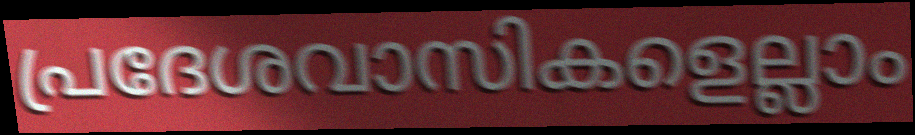
പ്രദേശവാസികളെല്ലാം